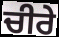
ਚੀਰੇ